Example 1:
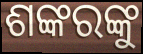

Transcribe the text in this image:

ଶଙ୍କରଙ୍କୁ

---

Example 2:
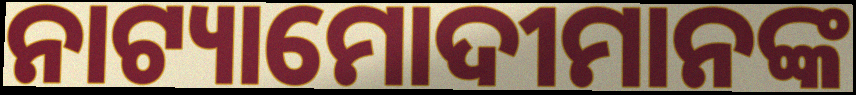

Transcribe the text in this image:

ନାଟ୍ୟାମୋଦୀମାନଙ୍କ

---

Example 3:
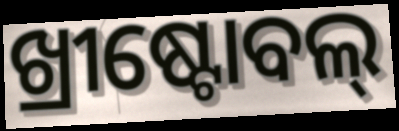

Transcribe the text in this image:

ଖ୍ରୀଷ୍ଟୋବଲ୍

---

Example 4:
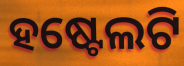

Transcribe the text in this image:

ହଷ୍ଟେଲଟି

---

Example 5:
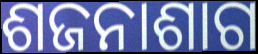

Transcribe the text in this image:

ଶଜନାଶାଗ